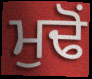
ਮੁਢੋਂ